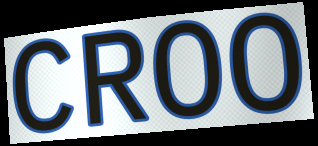
CROO